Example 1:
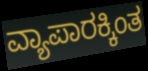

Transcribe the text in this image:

ವ್ಯಾಪಾರಕ್ಕಿಂತ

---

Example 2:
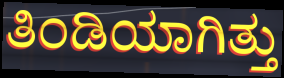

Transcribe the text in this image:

ತಿಂಡಿಯಾಗಿತ್ತು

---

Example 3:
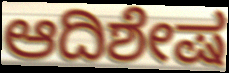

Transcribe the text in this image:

ಆದಿಶೇಷ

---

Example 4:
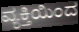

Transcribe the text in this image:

ವ್ಯಕ್ತಿಯಿಂದ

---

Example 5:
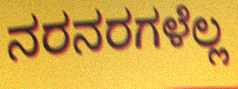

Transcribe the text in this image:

ನರನರಗಳೆಲ್ಲ